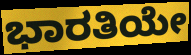
ಭಾರತಿಯೇ